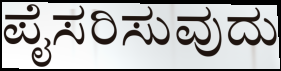
ಪೈಸರಿಸುವುದು